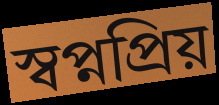
স্বপ্নপ্রিয়